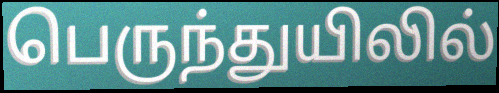
பெருந்துயிலில்